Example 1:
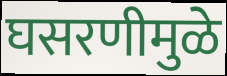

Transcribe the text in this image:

घसरणीमुळे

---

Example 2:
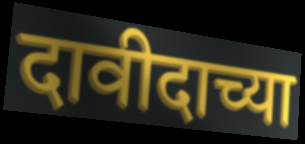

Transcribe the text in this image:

दावीदाच्या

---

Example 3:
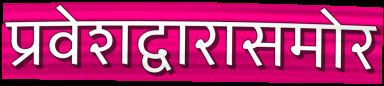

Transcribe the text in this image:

प्रवेशद्वारासमोर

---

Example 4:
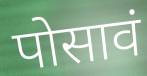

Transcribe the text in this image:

पोसावं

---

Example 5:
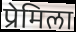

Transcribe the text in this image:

प्रेमिला